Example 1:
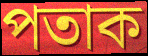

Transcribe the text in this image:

পতাক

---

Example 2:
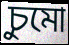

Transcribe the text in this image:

চুমো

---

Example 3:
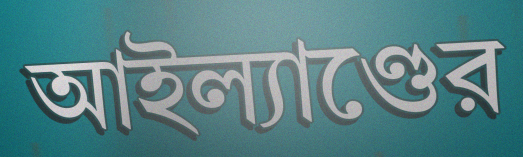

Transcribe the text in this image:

আইল্যাণ্ডের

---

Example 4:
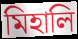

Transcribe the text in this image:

মিহালি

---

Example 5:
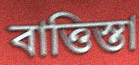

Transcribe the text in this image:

বাত্তিস্তা